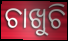
ଚାଖୁଚି